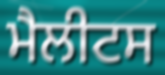
ਮੈਲੀਟਸ